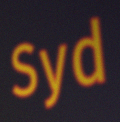
Syd